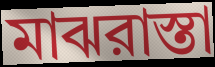
মাঝরাস্তা